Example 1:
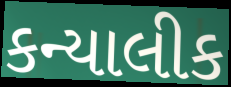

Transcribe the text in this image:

કન્યાલીક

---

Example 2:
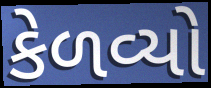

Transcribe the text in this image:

કેળવ્યો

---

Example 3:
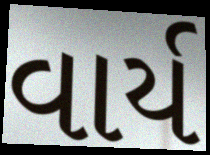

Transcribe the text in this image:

વાર્ય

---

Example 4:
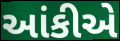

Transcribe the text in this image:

આંકીએ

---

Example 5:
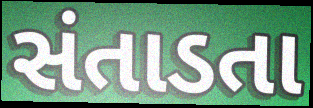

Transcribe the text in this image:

સંતાડતા